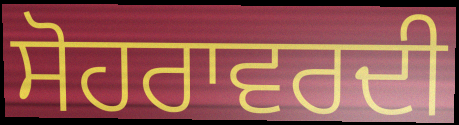
ਸੋਹਰਾਵਰਦੀ